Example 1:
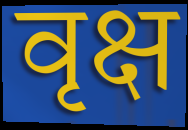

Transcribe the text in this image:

वृक्ष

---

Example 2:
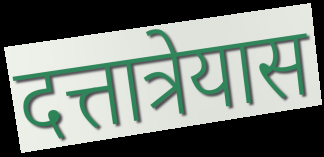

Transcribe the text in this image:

दत्तात्रेयास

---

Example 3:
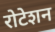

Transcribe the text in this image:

रोटेशन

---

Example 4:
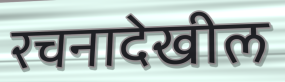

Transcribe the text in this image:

रचनादेखील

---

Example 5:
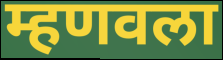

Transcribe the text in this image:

म्हणवला